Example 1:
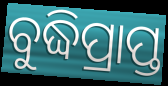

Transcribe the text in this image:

ବୁଦ୍ଧିପ୍ରାପ୍ତ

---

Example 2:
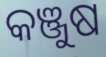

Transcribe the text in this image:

କଞ୍ଜୁଷ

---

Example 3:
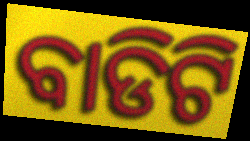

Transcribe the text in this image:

ବାଡିଟି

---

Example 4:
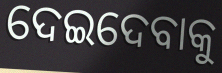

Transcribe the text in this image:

ଦେଇଦେବାକୁ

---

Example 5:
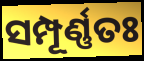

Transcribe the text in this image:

ସମ୍ପୂର୍ଣ୍ଣତଃ